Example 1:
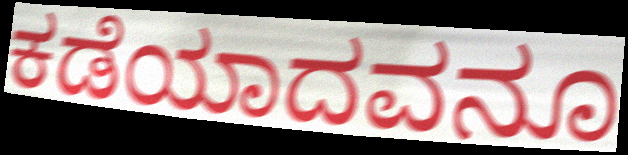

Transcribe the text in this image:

ಕಡೆಯಾದವನೂ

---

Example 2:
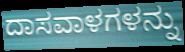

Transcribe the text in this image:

ದಾಸವಾಳಗಳನ್ನು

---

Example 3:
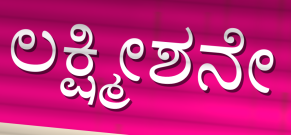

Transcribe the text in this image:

ಲಕ್ಷ್ಮೀಶನೇ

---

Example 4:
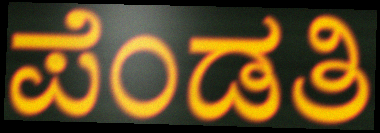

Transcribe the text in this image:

ಪೆಂಡತಿ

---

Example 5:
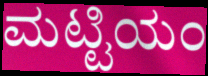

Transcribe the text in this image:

ಮಟ್ಟಿಯಂ